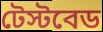
টেস্টবেড